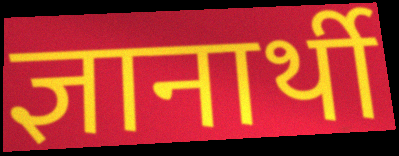
ज्ञानार्थी